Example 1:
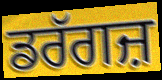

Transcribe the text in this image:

ਡਰੱਗਜ਼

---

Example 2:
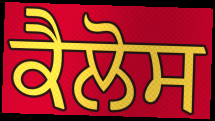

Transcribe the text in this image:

ਕੈਲੋਸ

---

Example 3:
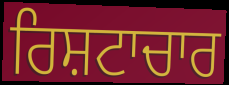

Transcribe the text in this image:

ਰਿਸ਼ਟਾਚਾਰ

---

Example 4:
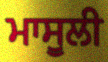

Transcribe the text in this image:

ਮਾਸੂਲੀ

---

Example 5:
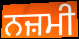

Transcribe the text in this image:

ਨਜ਼ਮੀ